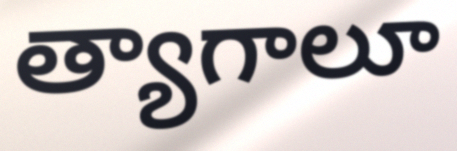
త్యాగాలూ